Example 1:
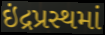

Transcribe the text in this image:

ઇંદ્રપ્રસ્થમાં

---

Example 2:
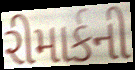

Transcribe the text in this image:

રીમાર્કની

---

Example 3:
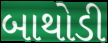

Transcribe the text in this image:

બાથોડી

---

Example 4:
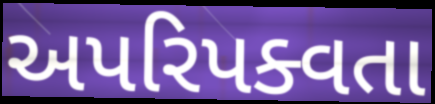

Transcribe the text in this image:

અપરિપક્વતા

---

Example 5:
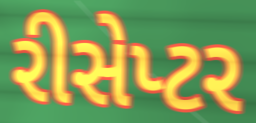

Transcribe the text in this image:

રીસેપ્ટર